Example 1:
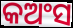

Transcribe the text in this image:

କଅଂସ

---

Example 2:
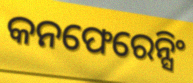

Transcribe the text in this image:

କନଫେରେନ୍ସିଂ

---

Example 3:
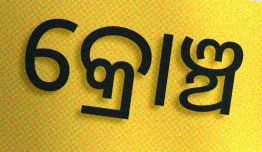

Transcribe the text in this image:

କ୍ରୋଞ୍ଚ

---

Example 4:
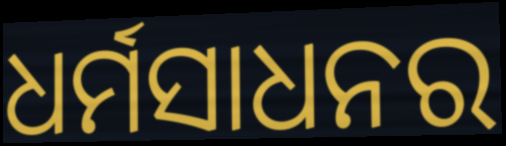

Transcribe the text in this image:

ଧର୍ମସାଧନର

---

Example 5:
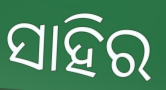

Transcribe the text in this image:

ସାହିର